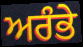
ਅਰੰਭੇ